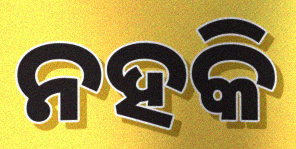
ନହକି